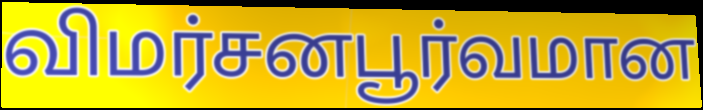
விமர்சனபூர்வமான